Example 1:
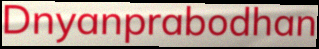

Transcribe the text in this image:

Dnyanprabodhan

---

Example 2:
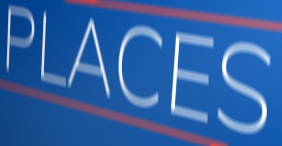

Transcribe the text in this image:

PLACES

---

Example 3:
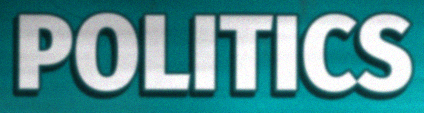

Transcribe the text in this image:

POLITICS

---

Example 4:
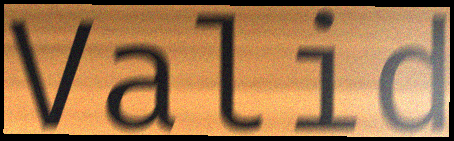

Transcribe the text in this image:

Valid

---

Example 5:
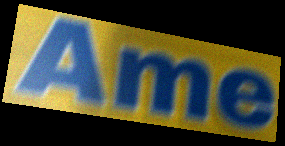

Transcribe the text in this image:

Ame